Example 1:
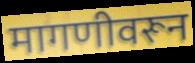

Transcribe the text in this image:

मागणीवरून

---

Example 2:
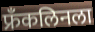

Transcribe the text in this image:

फ्रॅंकलिनला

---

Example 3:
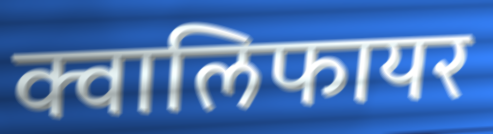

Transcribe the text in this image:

क्वालिफायर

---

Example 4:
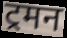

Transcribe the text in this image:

ट्रमन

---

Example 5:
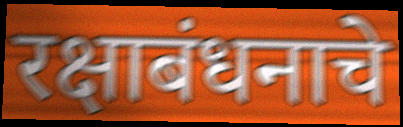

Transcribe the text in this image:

रक्षाबंधनाचे